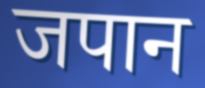
जपान